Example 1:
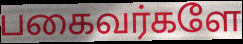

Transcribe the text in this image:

பகைவர்களே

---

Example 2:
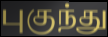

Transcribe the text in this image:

புகுந்து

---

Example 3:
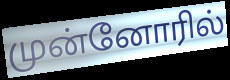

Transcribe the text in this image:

முன்னோரில்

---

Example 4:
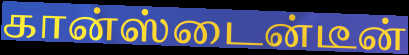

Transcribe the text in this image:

கான்ஸ்டைன்டீன்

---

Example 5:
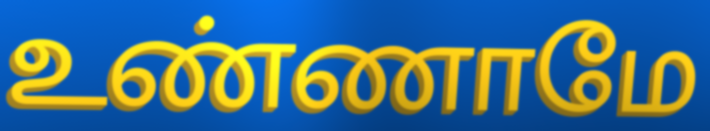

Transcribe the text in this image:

உண்ணாமே